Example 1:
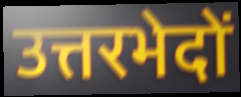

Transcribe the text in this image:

उत्तरभेदों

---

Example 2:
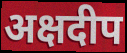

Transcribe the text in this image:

अक्षदीप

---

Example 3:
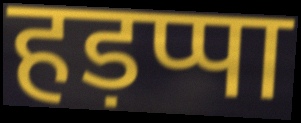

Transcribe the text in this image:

हड़प्पा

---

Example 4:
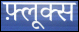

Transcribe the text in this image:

फ़्लूक्स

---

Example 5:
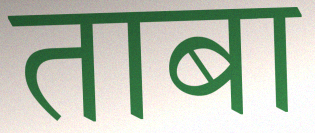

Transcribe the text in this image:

ताबा